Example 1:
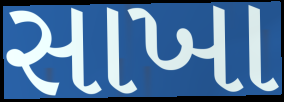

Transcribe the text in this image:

સાખા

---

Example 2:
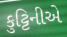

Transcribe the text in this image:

કુટ્ટિનીએ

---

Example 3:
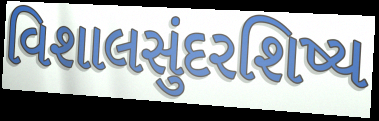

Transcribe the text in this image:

વિશાલસુંદરશિષ્ય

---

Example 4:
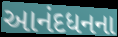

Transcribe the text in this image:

આનંદધનના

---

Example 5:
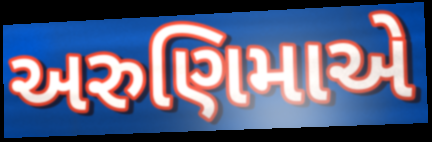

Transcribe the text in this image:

અરુણિમાએ